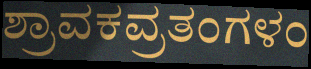
ಶ್ರಾವಕವ್ರತಂಗಳಂ